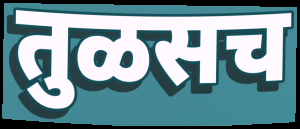
तुळसच